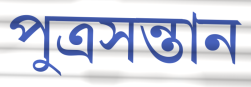
পুত্রসন্তান